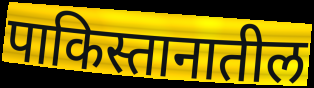
पाकिस्तानातील